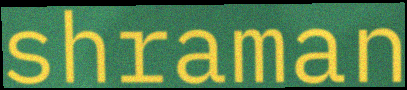
shraman